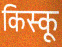
किस्कू